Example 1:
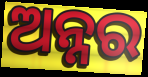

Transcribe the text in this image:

ଅନ୍ନର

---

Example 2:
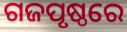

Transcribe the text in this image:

ଗଜପୃଷ୍ଠରେ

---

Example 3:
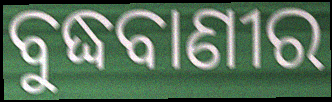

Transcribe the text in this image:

ବୁଦ୍ଧବାଣୀର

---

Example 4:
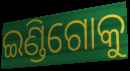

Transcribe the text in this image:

ଇଣ୍ଡିଗୋକୁ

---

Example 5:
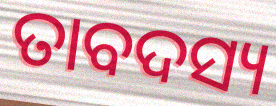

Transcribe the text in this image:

ତାବଦସ୍ୟ